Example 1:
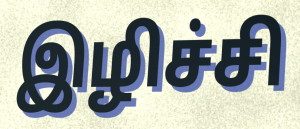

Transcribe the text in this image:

இழிச்சி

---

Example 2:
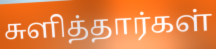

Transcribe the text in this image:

சுளித்தார்கள்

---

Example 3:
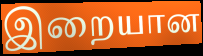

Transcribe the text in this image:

இறையான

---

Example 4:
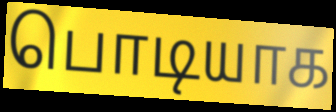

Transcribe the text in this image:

பொடியாக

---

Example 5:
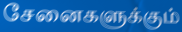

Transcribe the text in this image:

சேனைகளுக்கும்